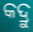
କଦ୍ରୁ